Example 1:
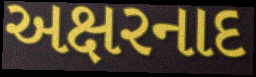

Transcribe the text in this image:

અક્ષરનાદ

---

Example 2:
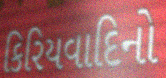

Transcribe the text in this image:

કિરિયવાદિનો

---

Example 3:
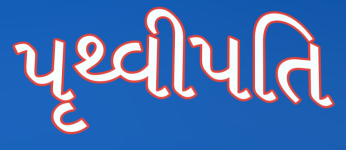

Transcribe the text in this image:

પૃથ્વીપતિ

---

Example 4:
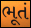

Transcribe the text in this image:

ભૂતં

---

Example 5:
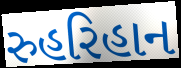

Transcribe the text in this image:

રુહરિહાન